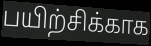
பயிற்சிக்காக